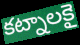
కట్నాలకై